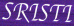
SRISTI